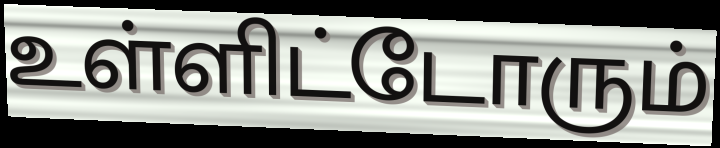
உள்ளிட்டோரும்